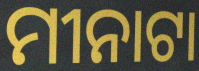
ମୀନାଟା